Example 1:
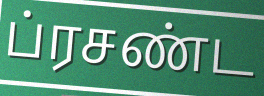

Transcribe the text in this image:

ப்ரசண்ட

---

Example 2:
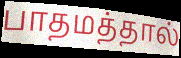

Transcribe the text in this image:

பாதமத்தால்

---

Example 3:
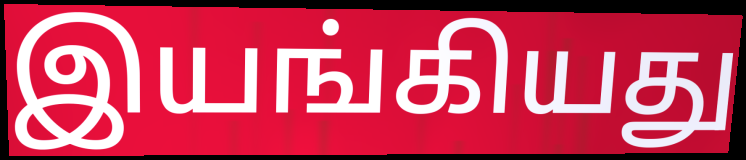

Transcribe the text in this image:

இயங்கியது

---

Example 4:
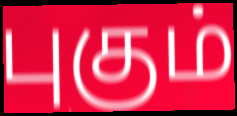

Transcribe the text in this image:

புகும்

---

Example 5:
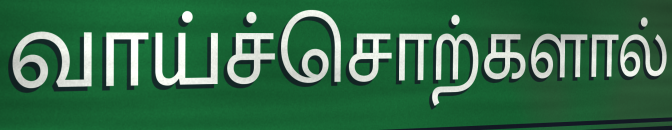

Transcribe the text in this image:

வாய்ச்சொற்களால்